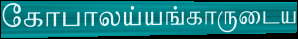
கோபாலய்யங்காருடைய